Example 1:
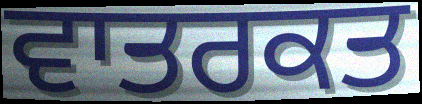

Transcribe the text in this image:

ਵਾਤਰਕਤ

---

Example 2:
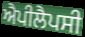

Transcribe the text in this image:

ਐਪੀਲੈਪਸੀ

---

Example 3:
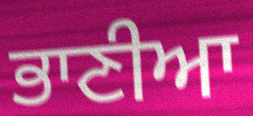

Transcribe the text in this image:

ਭਾਣੀਆ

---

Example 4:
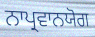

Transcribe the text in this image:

ਨਾਪ੍ਰਵਾਨਯੋਗ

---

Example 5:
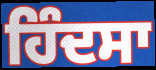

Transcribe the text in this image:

ਹਿੰਦਸਾ